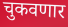
चुकवणार